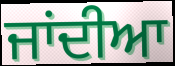
ਜਾਂਦੀਆ